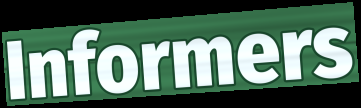
Informers